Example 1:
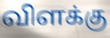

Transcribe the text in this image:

விளக்கு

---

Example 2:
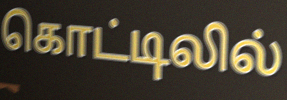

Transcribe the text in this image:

கொட்டிலில்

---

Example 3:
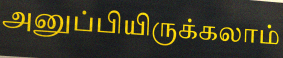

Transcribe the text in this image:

அனுப்பியிருக்கலாம்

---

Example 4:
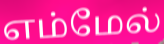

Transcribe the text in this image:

எம்மேல்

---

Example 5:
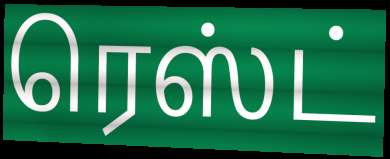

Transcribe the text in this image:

ரெஸ்ட்